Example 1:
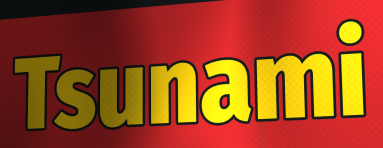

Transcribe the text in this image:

Tsunami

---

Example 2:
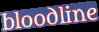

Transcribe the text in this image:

bloodline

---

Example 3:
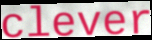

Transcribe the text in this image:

clever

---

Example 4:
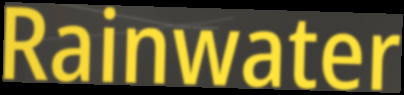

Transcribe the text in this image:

Rainwater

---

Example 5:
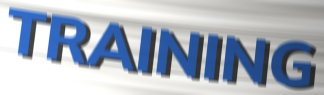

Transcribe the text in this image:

TRAINING